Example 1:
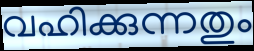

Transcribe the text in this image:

വഹിക്കുന്നതും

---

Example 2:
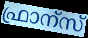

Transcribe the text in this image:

ഫ്രാന്സ്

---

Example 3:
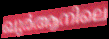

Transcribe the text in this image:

ഖുർആനിലെ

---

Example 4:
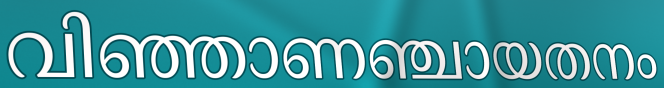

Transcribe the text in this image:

വിഞ്ഞാണഞ്ചായതനം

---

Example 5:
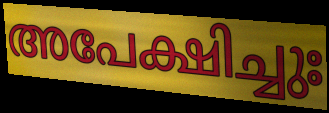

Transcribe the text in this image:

അപേക്ഷിച്ചുഃ